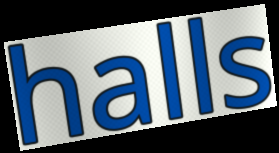
halls